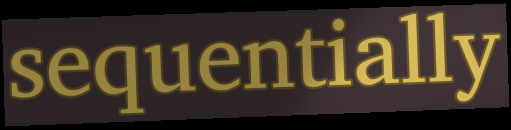
sequentially